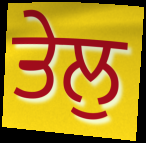
ਤੇਲੁ